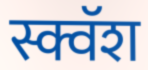
स्क्वॅश